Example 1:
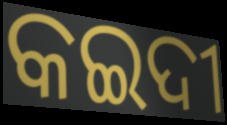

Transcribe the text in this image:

କଇଦୀ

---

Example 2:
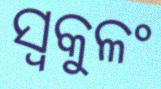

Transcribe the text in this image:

ସ୍ୱକୁଳଂ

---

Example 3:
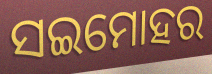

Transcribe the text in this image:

ସଇମୋହର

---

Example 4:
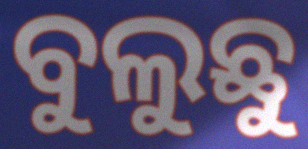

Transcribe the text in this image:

ବୁଲୁଛୁ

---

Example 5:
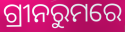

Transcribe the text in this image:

ଗ୍ରୀନରୁମରେ